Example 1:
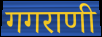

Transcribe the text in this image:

गगराणी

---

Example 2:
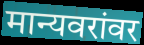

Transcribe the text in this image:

मान्यवरांवर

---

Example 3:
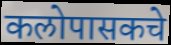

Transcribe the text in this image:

कलोपासकचे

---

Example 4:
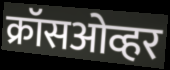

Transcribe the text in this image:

क्रॉसओव्हर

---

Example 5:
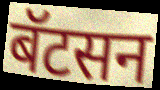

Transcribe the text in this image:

बॅटसन